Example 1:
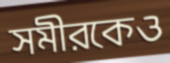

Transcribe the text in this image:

সমীরকেও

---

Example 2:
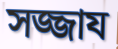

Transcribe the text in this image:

সজ্জায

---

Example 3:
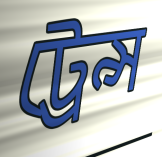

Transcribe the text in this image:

ট্রেন্স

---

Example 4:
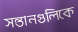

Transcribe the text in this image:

সন্তানগুলিকে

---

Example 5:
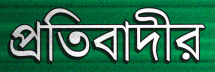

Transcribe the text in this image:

প্রতিবাদীর